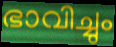
ഭാവിച്ചും